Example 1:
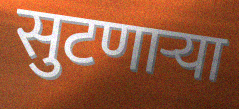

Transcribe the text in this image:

सुटणाऱ्या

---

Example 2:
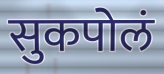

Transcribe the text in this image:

सुकपोलं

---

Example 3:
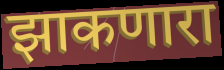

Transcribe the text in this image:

झाकणारा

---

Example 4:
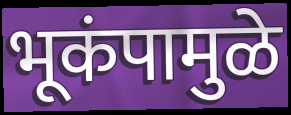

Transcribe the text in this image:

भूकंपामुळे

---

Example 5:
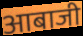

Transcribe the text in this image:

आबाजी